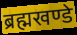
ब्रह्मखण्डे